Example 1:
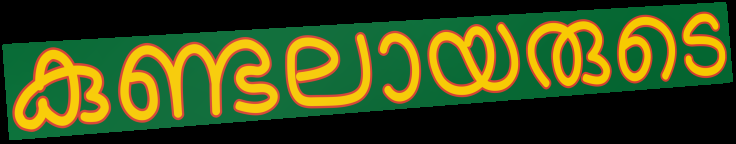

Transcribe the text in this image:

കുണ്ടലായരുടെ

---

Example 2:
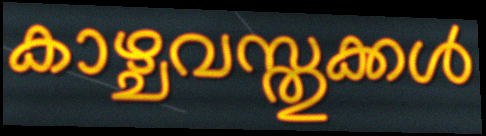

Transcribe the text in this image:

കാഴ്ചവസ്തുക്കൾ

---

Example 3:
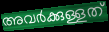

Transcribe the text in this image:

അവർക്കുള്ളത്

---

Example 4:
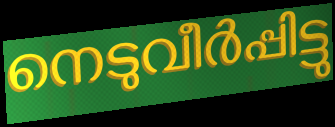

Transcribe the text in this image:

നെടുവീർപ്പിട്ടു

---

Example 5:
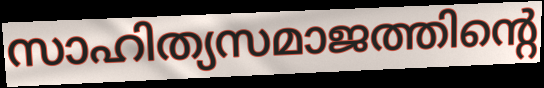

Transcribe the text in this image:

സാഹിത്യസമാജത്തിന്റെ